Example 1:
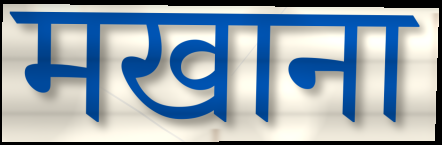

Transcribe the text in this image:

मखाना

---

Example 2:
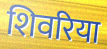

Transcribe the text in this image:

शिवरिया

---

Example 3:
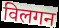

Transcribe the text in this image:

विलगन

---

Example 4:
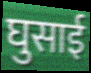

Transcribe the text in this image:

घुसाई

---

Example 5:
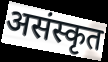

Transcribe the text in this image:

असंस्कृत